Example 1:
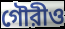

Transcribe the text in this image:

গৌরীও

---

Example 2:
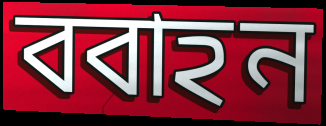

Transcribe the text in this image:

ববাহন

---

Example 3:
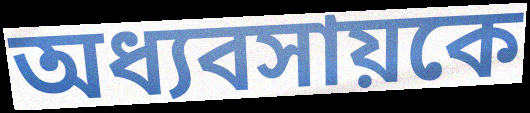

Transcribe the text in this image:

অধ্যবসায়কে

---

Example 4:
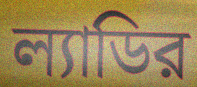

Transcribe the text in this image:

ল্যাডির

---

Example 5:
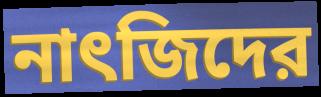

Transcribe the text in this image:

নাৎজিদের